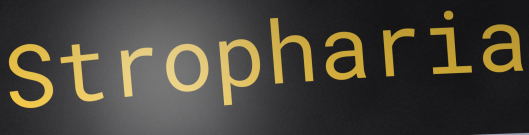
Stropharia